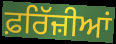
ਫ਼ਰਿੱਜ਼ੀਆਂ